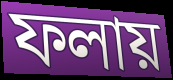
ফলায়